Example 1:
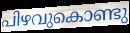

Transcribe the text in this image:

പിഴവുകൊണ്ടു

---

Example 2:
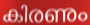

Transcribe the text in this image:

കിരണും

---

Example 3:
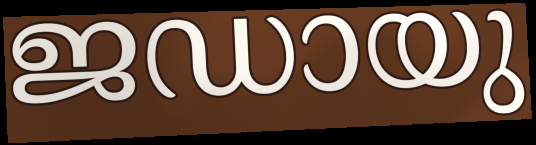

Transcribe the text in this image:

ജഡായു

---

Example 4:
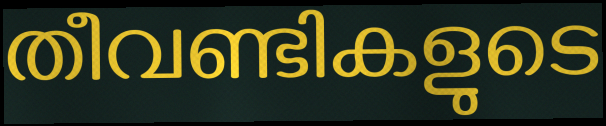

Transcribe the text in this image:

തീവണ്ടികളുടെ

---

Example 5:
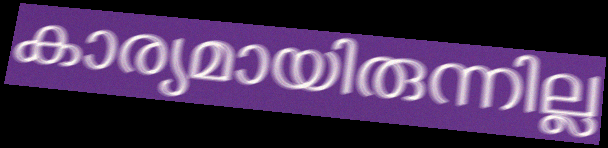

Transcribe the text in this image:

കാര്യമായിരുന്നില്ല